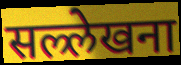
सल्लेखना